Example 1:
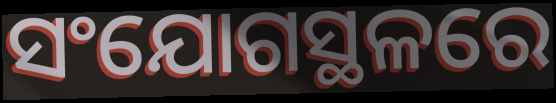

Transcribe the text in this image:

ସଂଯୋଗସ୍ଥଳରେ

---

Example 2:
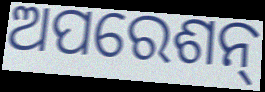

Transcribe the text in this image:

ଅପରେଶନ୍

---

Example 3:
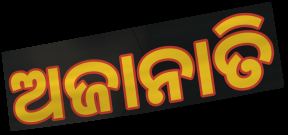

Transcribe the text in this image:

ଅଜାନାତି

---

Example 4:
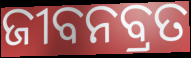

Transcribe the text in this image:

ଜୀବନବ୍ରତ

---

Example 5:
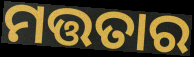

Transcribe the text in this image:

ମତ୍ତତାର